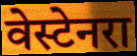
वेस्टेनरा